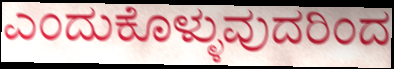
ಎಂದುಕೊಳ್ಳುವುದರಿಂದ